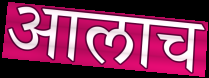
आलाच